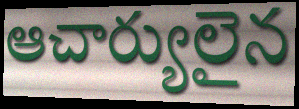
ఆచార్యులైన